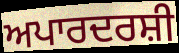
ਅਪਾਰਦਰਸ਼ੀ